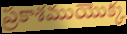
ప్రకాశముయొక్క